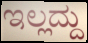
ಇಲ್ಲದ್ದು